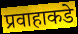
प्रवाहाकडे